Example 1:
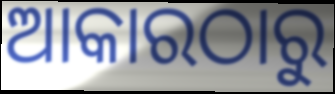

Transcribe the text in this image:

ଆକାରଠାରୁ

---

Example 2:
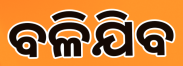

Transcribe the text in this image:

ବଳିଯିବ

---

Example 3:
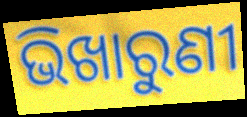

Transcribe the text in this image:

ଭିଖାରୁଣୀ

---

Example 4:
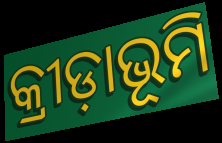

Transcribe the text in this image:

କ୍ରୀଡ଼ାଭୂମି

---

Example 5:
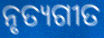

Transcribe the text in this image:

ନୃତ୍ୟଗୀତ